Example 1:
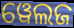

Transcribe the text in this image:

ୱେଲଜ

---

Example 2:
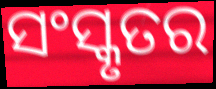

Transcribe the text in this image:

ସଂସ୍କୃତର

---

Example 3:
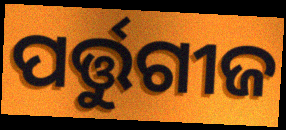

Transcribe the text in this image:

ପର୍ତ୍ତୁଗୀଜ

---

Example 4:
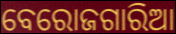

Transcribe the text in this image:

ବେରୋଜଗାରିଆ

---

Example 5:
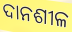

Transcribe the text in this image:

ଦାନଶୀଳ